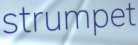
strumpet